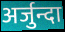
अर्जुन्दा